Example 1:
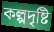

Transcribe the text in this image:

কল্পদৃষ্টি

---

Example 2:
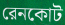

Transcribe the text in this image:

রেনকোট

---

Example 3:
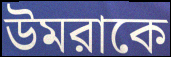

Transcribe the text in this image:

উমরাকে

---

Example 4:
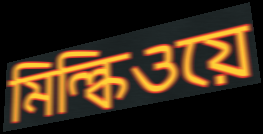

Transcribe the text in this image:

মিল্কিওয়ে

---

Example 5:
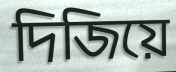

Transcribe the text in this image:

দিজিয়ে